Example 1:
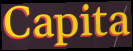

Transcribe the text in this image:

Capita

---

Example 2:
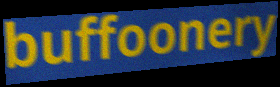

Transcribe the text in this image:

buffoonery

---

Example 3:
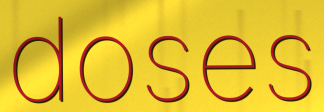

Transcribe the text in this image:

doses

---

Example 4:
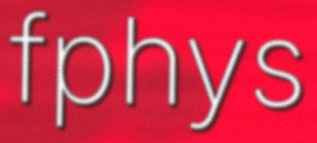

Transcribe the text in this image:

fphys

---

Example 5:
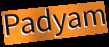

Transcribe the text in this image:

Padyam